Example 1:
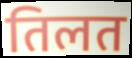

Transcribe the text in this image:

तिलत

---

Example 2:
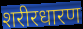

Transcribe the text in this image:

शरीरधारण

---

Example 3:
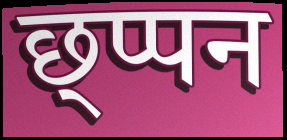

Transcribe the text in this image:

छ्प्पन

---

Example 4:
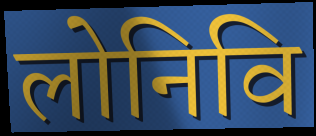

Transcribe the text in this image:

लोनिवि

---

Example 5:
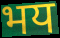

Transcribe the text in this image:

भय